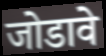
जोडावे